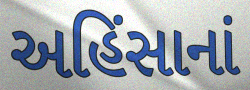
અહિંસાનાં